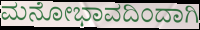
ಮನೋಭಾವದಿಂದಾಗಿ